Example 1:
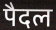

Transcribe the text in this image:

पैदल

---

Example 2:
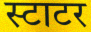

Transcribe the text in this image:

स्टाटर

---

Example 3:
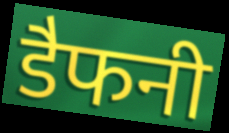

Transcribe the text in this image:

डैफनी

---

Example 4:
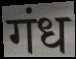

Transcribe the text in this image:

गंध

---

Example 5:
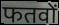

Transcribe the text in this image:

फतवों